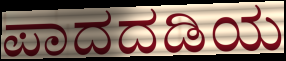
ಪಾದದಡಿಯ